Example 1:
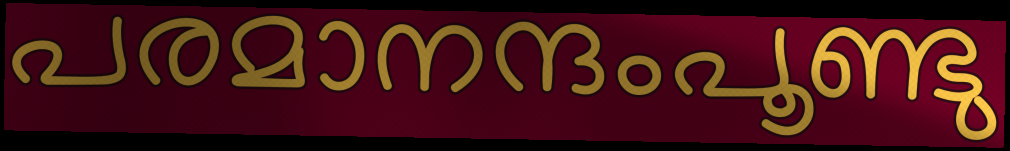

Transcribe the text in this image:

പരമാനന്ദംപൂണ്ടു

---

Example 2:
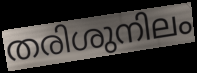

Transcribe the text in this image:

തരിശുനിലം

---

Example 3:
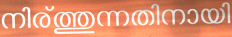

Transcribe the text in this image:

നിര്ത്തുന്നതിനായി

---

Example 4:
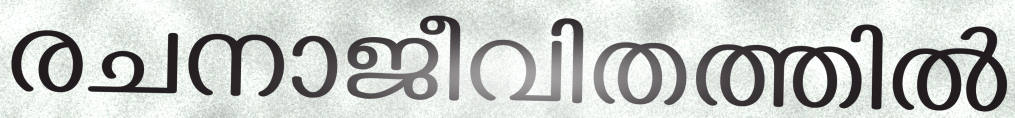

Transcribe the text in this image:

രചനാജീവിതത്തിൽ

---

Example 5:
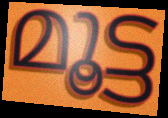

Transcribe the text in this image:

മൂട്ട